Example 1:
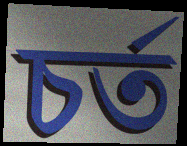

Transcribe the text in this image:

চৰ্ত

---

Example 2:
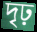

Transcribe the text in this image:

দৃঢ়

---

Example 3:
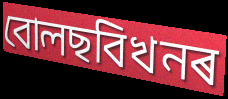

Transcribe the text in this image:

বোলছবিখনৰ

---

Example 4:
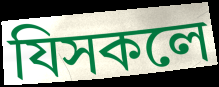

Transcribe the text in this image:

যিসকলে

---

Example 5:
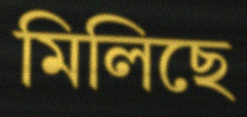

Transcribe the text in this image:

মিলিছে